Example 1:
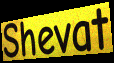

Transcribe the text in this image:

Shevat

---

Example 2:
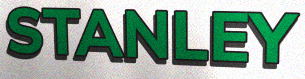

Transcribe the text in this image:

STANLEY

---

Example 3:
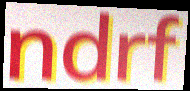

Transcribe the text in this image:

ndrf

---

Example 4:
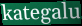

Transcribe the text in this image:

kategalu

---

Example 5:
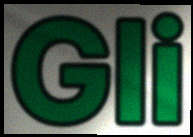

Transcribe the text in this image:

Gli